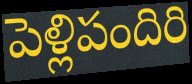
పెళ్లిపందిరి